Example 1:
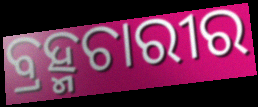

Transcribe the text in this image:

ବ୍ରହ୍ମଚାରୀର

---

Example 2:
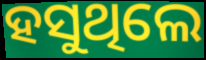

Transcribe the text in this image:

ହସୁଥିଲେ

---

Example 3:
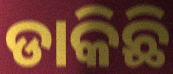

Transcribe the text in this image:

ଡାକିଛି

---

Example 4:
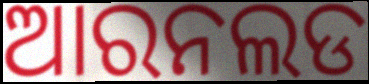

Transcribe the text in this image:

ଆରନଲଡ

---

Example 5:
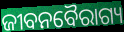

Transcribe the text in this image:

ଜୀବନବୈରାଗ୍ୟ